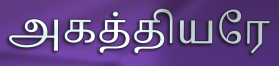
அகத்தியரே